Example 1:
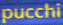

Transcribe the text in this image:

pucchi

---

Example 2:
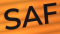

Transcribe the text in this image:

SAF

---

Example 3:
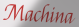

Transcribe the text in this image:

Machina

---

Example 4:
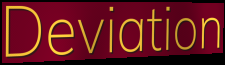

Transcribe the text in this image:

Deviation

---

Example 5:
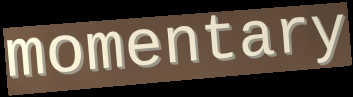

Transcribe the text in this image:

momentary